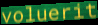
voluerit